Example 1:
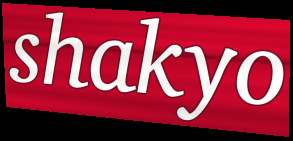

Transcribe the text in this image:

shakyo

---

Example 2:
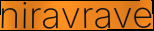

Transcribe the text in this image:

niravrave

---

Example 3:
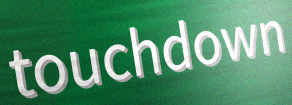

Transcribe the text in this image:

touchdown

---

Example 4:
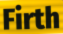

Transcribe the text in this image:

Firth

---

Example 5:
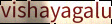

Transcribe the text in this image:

vishayagalu